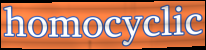
homocyclic